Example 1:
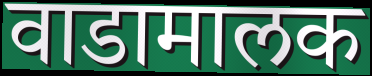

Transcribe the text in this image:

वाडामालक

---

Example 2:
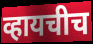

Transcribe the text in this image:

व्हायचीच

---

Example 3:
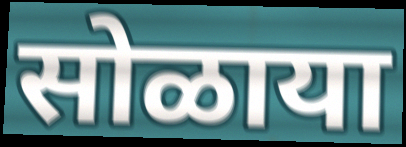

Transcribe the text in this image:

सोळाया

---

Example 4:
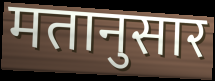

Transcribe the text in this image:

मतानुसार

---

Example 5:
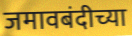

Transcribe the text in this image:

जमावबंदीच्या